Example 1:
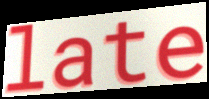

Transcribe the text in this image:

late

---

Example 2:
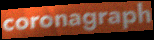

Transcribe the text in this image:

coronagraph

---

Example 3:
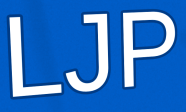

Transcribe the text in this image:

LJP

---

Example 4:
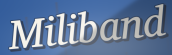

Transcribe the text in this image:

Miliband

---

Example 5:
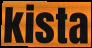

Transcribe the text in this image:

kista